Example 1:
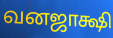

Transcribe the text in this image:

வனஜாக்ஷி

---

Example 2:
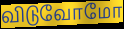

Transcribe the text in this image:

விடுவோமோ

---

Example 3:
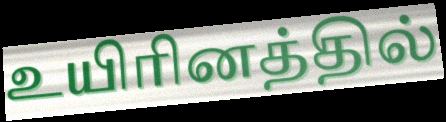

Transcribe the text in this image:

உயிரினத்தில்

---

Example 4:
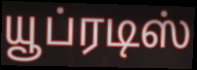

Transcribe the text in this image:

யூப்ரடிஸ்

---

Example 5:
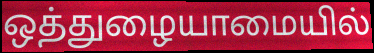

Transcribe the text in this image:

ஒத்துழையாமையில்